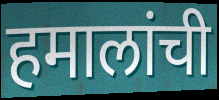
हमालांची